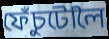
ফেঁচুটোলৈ